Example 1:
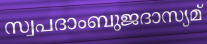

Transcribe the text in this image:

സ്വപദാംബുജദാസ്യമ്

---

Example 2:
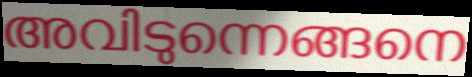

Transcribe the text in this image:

അവിടുന്നെങ്ങനെ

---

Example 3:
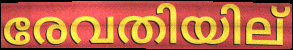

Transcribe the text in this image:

രേവതിയില്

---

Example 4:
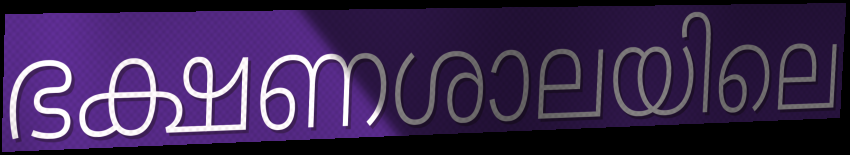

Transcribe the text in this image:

ഭക്ഷണശാലയിലെ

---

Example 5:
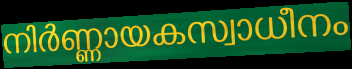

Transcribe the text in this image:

നിർണ്ണായകസ്വാധീനം